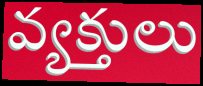
వ్యక్తులు